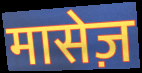
मासेज़